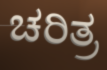
ಚರಿತ್ರ